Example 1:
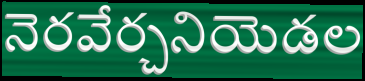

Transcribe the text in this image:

నెరవేర్చనియెడల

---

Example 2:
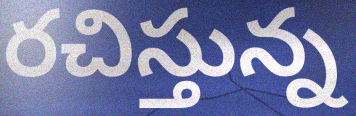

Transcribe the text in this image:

రచిస్తున్న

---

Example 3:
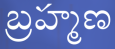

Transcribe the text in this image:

బ్రహ్మణ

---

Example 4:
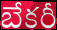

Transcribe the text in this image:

బేకరీ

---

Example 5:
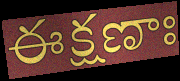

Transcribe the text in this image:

ఈక్షణాః